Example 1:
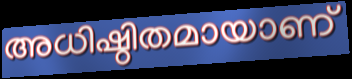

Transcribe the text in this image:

അധിഷ്ഠിതമായാണ്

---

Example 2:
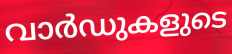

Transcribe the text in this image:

വാർഡുകളുടെ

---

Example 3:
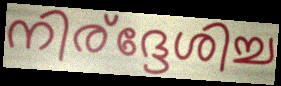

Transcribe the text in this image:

നിര്ദ്ദേശിച്ച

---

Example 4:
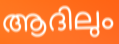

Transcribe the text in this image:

ആദിലും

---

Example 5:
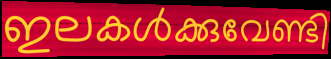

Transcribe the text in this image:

ഇലകൾക്കുവേണ്ടി